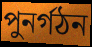
পুনর্গঠন